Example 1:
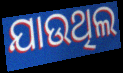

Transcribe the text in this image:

ଯାଉଥିଲ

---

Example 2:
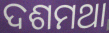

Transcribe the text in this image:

ଦଶମଥା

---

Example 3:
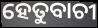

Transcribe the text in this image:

ହେତୁବାଚୀ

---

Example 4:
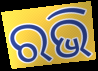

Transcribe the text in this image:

ରଭି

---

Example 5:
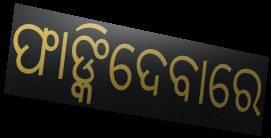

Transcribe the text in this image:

ଫାଙ୍କିଦେବାରେ